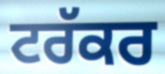
ਟਰੱਕਰ